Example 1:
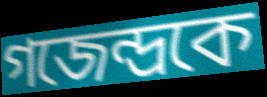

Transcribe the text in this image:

গজেন্দ্রকে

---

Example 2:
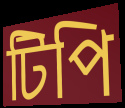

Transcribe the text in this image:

টিপি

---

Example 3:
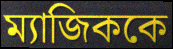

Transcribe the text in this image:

ম্যাজিককে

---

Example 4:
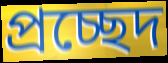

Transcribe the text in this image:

প্রচ্ছেদ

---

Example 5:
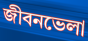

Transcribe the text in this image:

জীবনভেলা